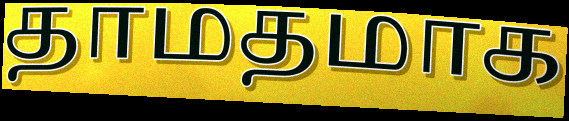
தாமதமாக